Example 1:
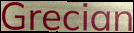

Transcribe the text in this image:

Grecian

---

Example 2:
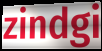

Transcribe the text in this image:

zindgi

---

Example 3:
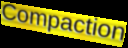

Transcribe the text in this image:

Compaction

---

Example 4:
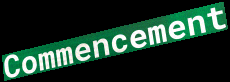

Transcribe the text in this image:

Commencement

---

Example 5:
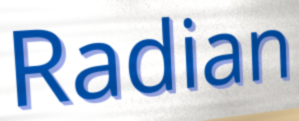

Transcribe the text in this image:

Radian